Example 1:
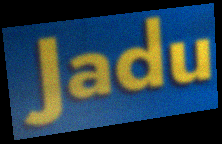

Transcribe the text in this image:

Jadu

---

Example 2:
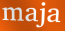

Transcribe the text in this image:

maja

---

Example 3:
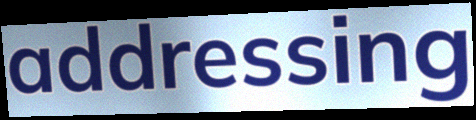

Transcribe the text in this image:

addressing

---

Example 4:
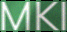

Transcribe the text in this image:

MKI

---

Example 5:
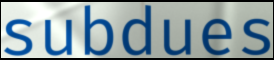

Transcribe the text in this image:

subdues